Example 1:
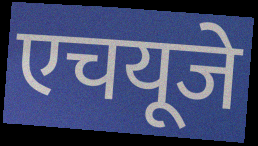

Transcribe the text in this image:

एचयूजे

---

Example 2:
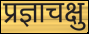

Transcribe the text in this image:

प्रज्ञाचक्षु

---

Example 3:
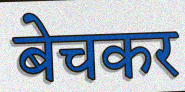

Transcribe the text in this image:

बेचकर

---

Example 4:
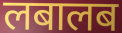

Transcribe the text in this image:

लबालब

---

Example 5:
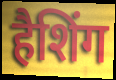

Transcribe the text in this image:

हैशिंग